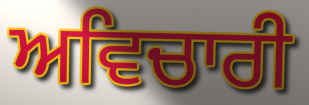
ਅਵਿਚਾਰੀ